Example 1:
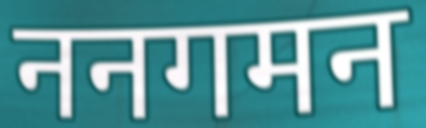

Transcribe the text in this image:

ननगमन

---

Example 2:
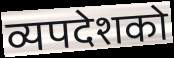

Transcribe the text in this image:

व्यपदेशको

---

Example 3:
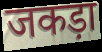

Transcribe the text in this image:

जकड़ा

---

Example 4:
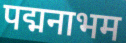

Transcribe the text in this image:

पद्मनाभम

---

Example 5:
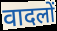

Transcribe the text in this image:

वादलों